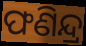
ଫଣିନ୍ଦ୍ର